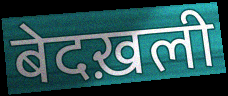
बेदख़ली